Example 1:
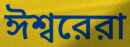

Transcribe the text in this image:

ঈশ্বরেরা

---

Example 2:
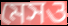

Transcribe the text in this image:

মেসও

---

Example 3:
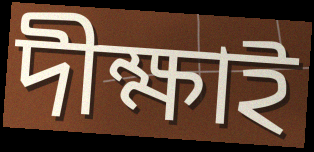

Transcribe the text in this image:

দীক্ষাই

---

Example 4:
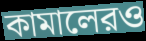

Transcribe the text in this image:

কামালেরও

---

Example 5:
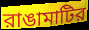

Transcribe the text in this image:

রাঙামাটির